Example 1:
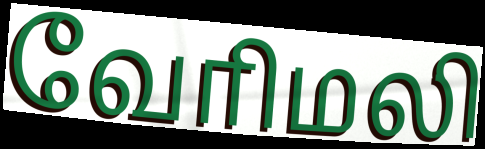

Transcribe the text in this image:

வேரிமலி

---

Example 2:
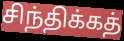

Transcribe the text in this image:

சிந்திக்கத்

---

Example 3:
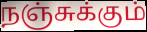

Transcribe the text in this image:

நஞ்சுக்கும்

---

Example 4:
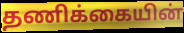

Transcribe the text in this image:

தணிக்கையின்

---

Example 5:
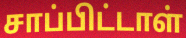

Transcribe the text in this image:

சாப்பிட்டாள்